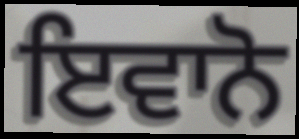
ਇਵਾਨੋ